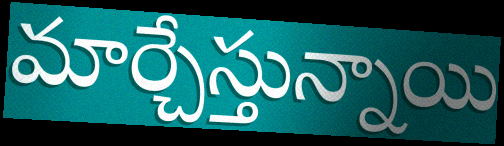
మార్చేస్తున్నాయి